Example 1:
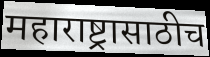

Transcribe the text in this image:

महाराष्ट्रासाठीच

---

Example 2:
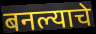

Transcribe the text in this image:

बनल्याचे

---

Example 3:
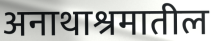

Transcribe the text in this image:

अनाथाश्रमातील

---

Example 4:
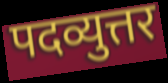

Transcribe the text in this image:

पदव्युत्तर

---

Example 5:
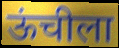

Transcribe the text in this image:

ऊंचीला